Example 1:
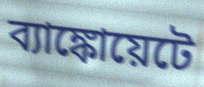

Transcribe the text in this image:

ব্যাঙ্কোয়েটে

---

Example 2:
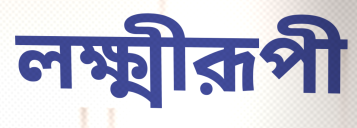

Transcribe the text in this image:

লক্ষ্মীরূপী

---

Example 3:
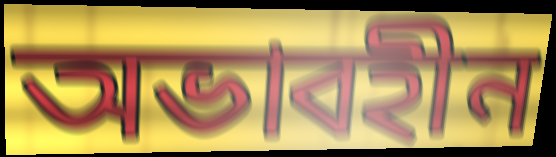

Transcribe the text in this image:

অভাবহীন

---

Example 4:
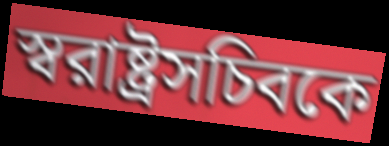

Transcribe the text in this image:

স্বরাষ্ট্রসচিবকে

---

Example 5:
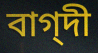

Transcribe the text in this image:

বাগ্‌দী